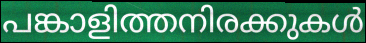
പങ്കാളിത്തനിരക്കുകൾ